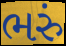
ભરું